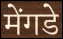
मेंगडे